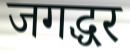
जगद्धर